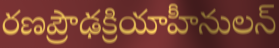
రణప్రౌఢక్రియాహీనులన్